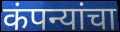
कंपन्यांचा